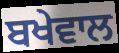
ਬਖੇਵਾਲ